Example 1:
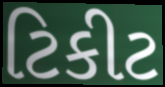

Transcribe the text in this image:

ટિકીટ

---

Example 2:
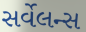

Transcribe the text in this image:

સર્વેલન્સ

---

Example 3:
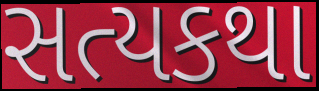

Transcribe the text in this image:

સત્યકથા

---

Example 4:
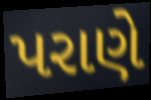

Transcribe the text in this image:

પરાણે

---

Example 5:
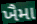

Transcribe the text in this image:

ખૈમા